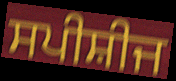
ਸਪੀਸ਼ੀਜ